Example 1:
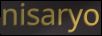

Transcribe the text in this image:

nisaryo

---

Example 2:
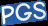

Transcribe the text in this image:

PGS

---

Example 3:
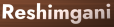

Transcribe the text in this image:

Reshimgani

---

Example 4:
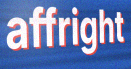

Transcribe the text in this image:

affright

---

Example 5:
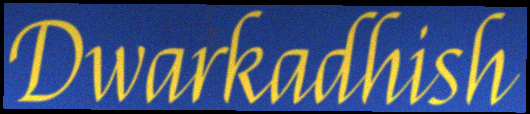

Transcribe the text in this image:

Dwarkadhish